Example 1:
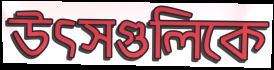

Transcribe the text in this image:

উৎসগুলিকে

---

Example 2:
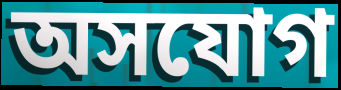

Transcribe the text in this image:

অসযোগ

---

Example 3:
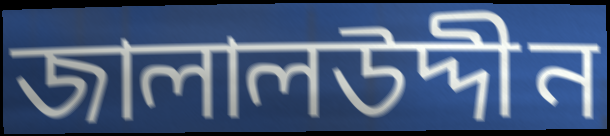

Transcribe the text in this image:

জালালউদ্দীন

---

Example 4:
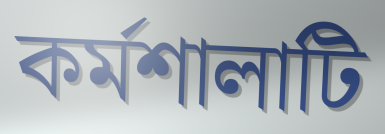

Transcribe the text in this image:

কর্মশালাটি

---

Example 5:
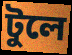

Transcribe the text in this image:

টুলে